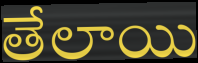
తేలాయి